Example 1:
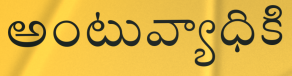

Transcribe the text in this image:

అంటువ్యాధికి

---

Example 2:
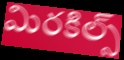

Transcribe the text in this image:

మిరకిల్స్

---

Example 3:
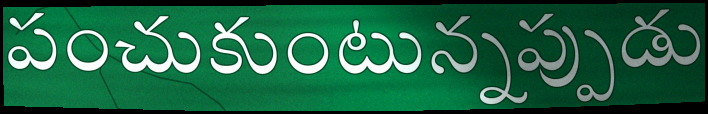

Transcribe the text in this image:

పంచుకుంటున్నప్పుడు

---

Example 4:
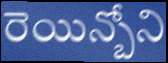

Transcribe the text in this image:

రెయిన్బోని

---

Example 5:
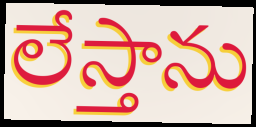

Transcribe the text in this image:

లేస్తాను